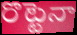
రొట్టెనా